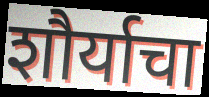
शौर्याचा